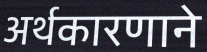
अर्थकारणाने